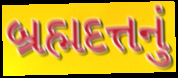
બ્રહ્મદત્તનું